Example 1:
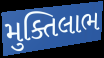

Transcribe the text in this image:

મુક્તિલાભ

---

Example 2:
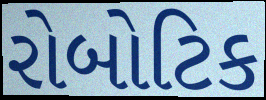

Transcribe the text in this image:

રોબોટિક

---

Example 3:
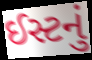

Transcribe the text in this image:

ઈસ્ટનું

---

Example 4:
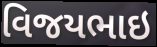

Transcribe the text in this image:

વિજયભાઇ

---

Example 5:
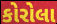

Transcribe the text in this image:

કોરોલા